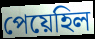
পেয়েহিল